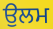
ਉਲਮ